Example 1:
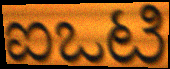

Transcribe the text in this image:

ಐಒಟಿ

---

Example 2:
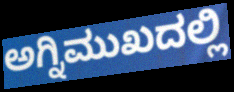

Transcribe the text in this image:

ಅಗ್ನಿಮುಖದಲ್ಲಿ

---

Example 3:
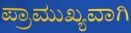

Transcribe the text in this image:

ಪ್ರಾಮುಖ್ಯವಾಗಿ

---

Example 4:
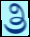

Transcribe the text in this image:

ತಿ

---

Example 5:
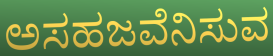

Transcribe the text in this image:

ಅಸಹಜವೆನಿಸುವ